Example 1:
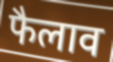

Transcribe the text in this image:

फैलाव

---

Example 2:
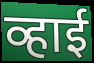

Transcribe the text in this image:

व्हाई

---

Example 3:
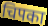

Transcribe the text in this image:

चिपका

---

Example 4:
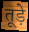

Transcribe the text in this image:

तूड़े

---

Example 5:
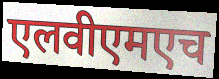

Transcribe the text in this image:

एलवीएमएच